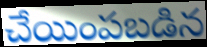
చేయింపబడిన